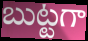
బుట్టగా